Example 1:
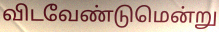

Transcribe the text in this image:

விடவேண்டுமென்று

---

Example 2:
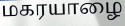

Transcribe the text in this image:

மகரயாழை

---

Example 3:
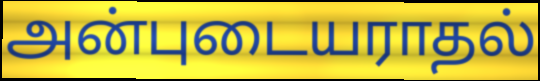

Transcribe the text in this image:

அன்புடையராதல்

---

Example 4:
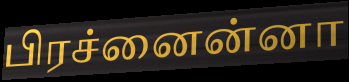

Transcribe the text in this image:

பிரச்னைன்னா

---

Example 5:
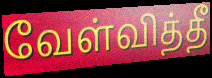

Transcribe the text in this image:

வேள்வித்தீ